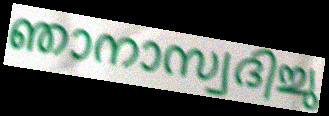
ഞാനാസ്വദിച്ചു